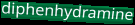
diphenhydramine